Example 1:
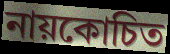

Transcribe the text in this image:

নায়কোচিত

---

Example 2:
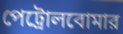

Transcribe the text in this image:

পেট্রোলবোমার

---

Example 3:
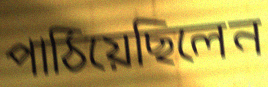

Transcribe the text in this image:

পাঠিয়েছিলেন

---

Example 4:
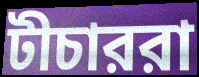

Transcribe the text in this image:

টীচাররা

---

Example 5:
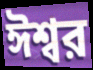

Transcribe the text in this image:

ঈশ্বর